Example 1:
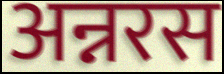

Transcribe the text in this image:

अन्नरस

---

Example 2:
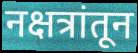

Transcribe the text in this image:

नक्षत्रांतून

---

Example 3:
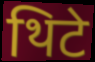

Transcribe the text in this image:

थिटे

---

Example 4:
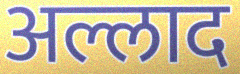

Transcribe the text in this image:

अल्लाद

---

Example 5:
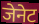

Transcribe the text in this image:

जेनेट